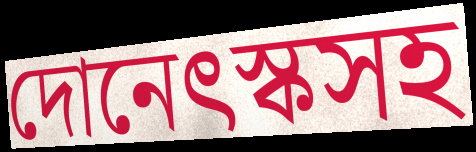
দোনেৎস্কসহ